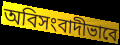
অবিসংবাদীভাবে